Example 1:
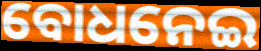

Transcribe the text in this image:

ବୋଧନେଇ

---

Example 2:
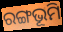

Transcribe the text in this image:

ରଙ୍ଗଭୂମି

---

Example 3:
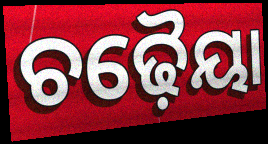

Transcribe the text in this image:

ଚଢ଼ୈୟା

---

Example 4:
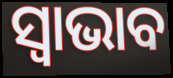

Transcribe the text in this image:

ସ୍ୱାଭାବ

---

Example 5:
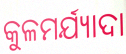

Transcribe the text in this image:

କୁଳମର୍ଯ୍ୟାଦା